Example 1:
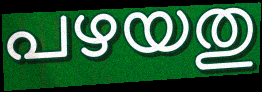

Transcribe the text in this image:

പഴയതു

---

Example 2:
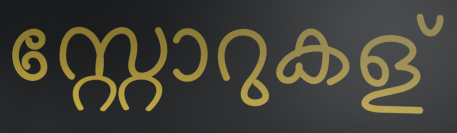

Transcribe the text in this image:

സ്റ്റോറുകള്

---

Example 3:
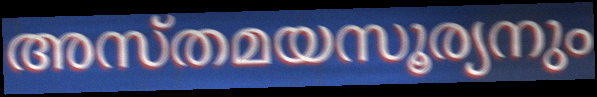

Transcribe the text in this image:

അസ്തമയസൂര്യനും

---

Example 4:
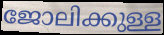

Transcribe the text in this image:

ജോലിക്കുള്ള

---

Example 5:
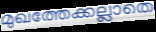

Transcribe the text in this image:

മുഖത്തേക്കല്ലാതെ